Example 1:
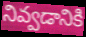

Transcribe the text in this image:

నివ్వడానికి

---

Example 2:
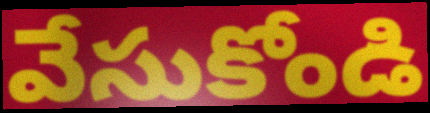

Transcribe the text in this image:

వేసుకోండి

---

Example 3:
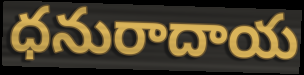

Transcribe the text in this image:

ధనురాదాయ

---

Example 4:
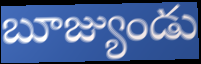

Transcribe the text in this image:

బూజ్యుండు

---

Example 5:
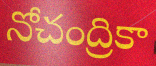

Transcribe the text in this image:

నోచంద్రికా